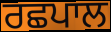
ਰਛਪਾਲ